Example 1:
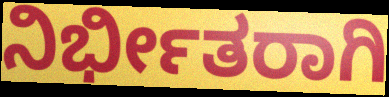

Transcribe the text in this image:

ನಿರ್ಭೀತರಾಗಿ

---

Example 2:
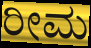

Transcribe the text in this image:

ರೀಮ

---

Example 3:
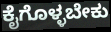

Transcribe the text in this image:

ಕೈಗೊಳ್ಳಬೇಕು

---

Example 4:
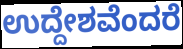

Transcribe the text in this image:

ಉದ್ದೇಶವೆಂದರೆ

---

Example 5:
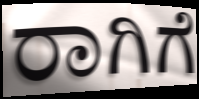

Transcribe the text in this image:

ರಾಗಿಗೆ